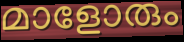
മാളോരും